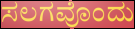
ಸಲಗವೊಂದು